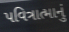
પવિત્રાત્માનું